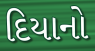
દિયાનો